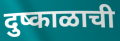
दुष्काळाची